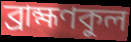
ব্রাহ্মণকুল